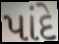
પાંદે